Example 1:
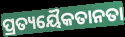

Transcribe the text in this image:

ପ୍ରତ୍ୟୟୈକତାନତା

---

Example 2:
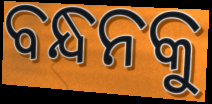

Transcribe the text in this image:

ବନ୍ଧନକୁ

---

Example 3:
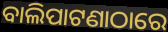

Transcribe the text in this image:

ବାଲିପାଟଣାଠାରେ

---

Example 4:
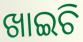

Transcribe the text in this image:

ଖାଇଚି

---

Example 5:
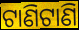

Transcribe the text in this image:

ଟାଣିଟାଣି